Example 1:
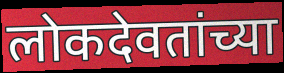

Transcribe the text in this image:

लोकदेवतांच्या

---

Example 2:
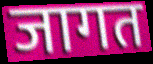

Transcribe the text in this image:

जागत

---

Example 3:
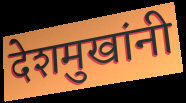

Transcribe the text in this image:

देशमुखांनी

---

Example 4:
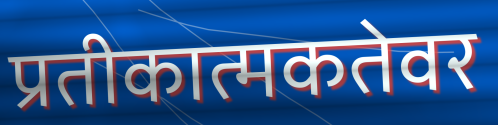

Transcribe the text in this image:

प्रतीकात्मकतेवर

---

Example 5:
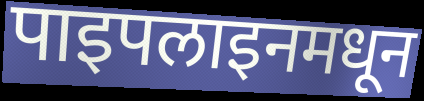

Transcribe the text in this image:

पाइपलाइनमधून